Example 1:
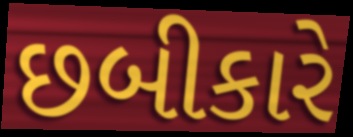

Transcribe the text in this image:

છબીકારે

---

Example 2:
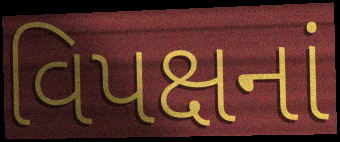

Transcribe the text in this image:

વિપક્ષનાં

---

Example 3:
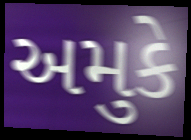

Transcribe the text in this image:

અમુકે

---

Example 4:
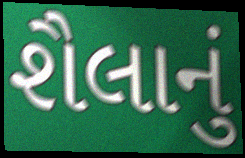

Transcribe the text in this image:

શૈલાનું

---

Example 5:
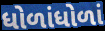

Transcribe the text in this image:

ધોળાંધોળાં